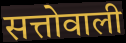
सत्तोवाली